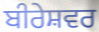
ਬੀਰੇਸ਼ਵਰ